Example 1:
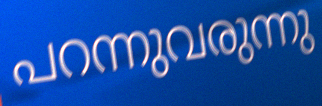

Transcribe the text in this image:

പറന്നുവരുന്നു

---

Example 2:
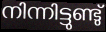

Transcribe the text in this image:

നിന്നിട്ടുണ്ടു്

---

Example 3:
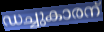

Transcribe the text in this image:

ഡച്ചുകാരന്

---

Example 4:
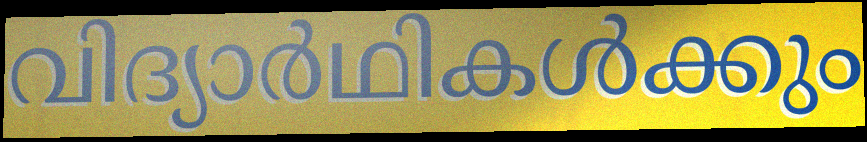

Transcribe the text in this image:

വിദ്യാർഥികൾക്കും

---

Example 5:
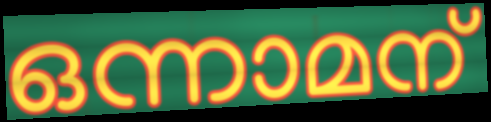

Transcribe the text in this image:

ഒന്നാമന്